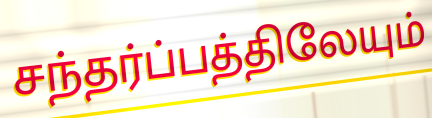
சந்தர்ப்பத்திலேயும்